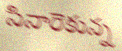
సినారెకున్న